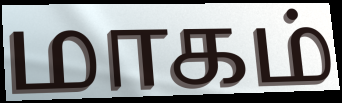
மாகம்